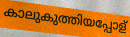
കാലുകുത്തിയപ്പോള്